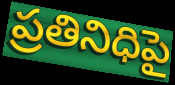
ప్రతినిధిపై